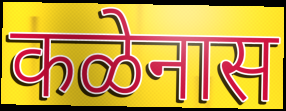
कळेनास